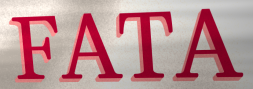
FATA